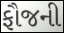
ફૌજની